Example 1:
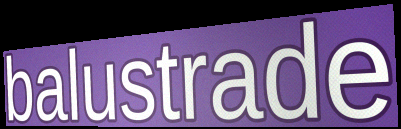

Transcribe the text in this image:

balustrade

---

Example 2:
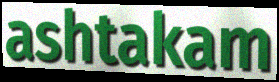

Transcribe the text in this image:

ashtakam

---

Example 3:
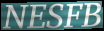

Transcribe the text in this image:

NESFB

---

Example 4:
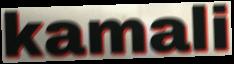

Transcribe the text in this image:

kamali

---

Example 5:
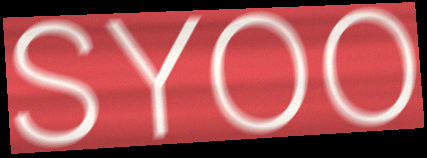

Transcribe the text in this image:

SYOO